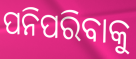
ପନିପରିବାକୁ